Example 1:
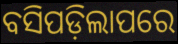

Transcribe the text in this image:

ବସିପଡ଼ିଲାପରେ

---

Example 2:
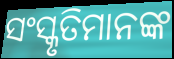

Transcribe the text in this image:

ସଂସ୍କୃତିମାନଙ୍କ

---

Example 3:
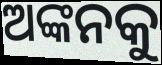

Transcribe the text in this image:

ଅଙ୍କନକୁ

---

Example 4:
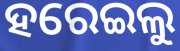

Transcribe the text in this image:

ହରେଇଲୁ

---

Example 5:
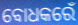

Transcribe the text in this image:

ବୋଧକରେଁ